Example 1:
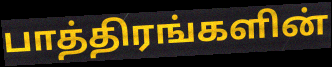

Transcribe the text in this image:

பாத்திரங்களின்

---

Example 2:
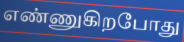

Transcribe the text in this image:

எண்ணுகிறபோது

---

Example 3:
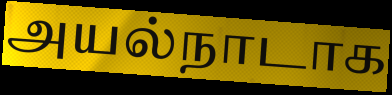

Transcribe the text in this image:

அயல்நாடாக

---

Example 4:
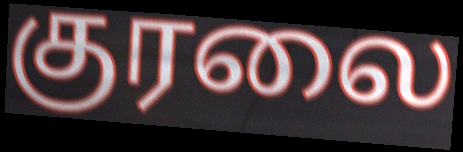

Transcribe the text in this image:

குரலை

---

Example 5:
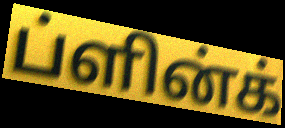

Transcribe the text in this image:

ப்ளின்க்